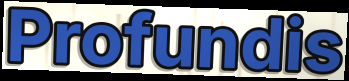
Profundis